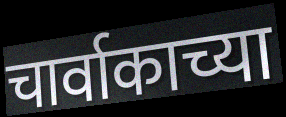
चार्वाकाच्या